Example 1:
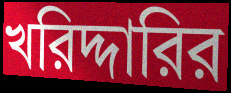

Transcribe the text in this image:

খরিদ্দারির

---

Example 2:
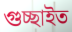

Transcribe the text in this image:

গুচ্ছাইত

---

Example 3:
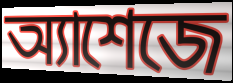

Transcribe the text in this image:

অ্যাশেজে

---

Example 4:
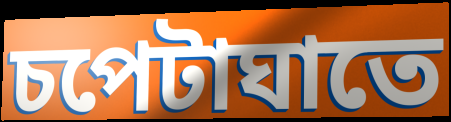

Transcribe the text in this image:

চপেটাঘাতে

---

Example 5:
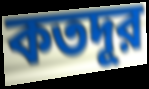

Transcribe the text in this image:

কতদূর